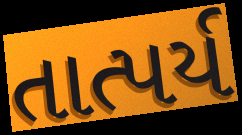
તાત્પર્ય